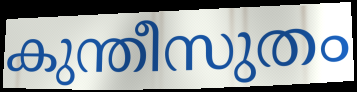
കുന്തീസുതം